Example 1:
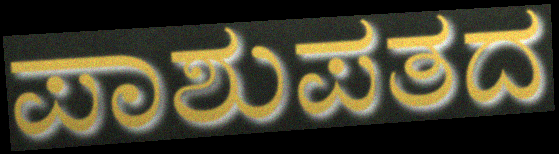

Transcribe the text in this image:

ಪಾಶುಪತದ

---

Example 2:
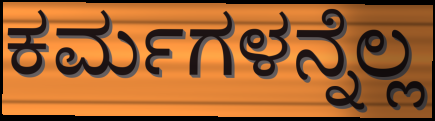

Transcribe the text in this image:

ಕರ್ಮಗಳನ್ನೆಲ್ಲ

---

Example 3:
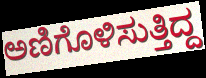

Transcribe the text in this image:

ಅಣಿಗೊಳಿಸುತ್ತಿದ್ದ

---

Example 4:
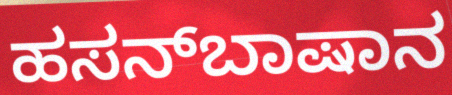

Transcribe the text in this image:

ಹಸನ್‌ಬಾಷಾನ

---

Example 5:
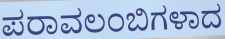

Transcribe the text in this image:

ಪರಾವಲಂಬಿಗಳಾದ